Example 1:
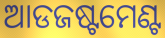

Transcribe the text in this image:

ଆଡଜଷ୍ଟମେଣ୍ଟ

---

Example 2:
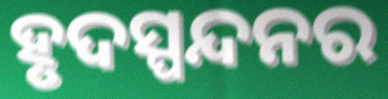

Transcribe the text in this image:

ହୃଦସ୍ପନ୍ଦନର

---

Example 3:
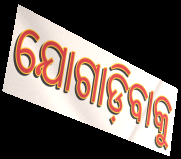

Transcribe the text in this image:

ଯୋଗାଡ଼ିବାକୁ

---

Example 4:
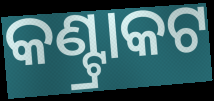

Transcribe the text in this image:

କଣ୍ଟ୍ରାକଟ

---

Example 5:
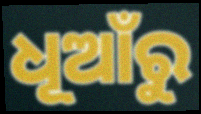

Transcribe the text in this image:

ଧୂଆଁରୁ